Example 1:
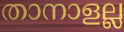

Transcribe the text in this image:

താനാളല്ല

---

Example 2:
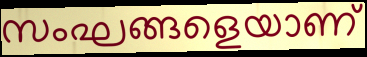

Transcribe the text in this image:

സംഘങ്ങളെയാണ്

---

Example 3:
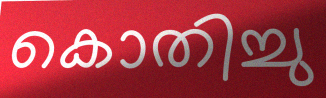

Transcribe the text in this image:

കൊതിച്ചു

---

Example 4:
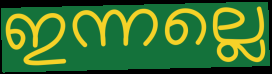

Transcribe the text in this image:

ഇന്നല്ലെ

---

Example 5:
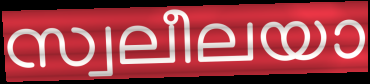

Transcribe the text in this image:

സ്വലീലയാ